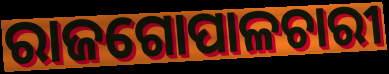
ରାଜଗୋପାଳଚାରୀ